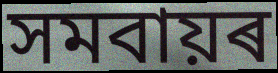
সমবায়ৰ